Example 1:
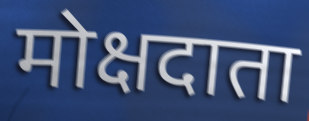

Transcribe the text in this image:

मोक्षदाता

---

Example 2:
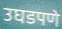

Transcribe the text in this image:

उघडपणे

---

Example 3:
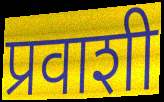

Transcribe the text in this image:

प्रवाशी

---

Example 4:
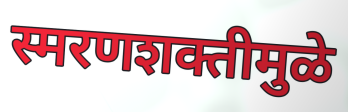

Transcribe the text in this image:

स्मरणशक्तीमुळे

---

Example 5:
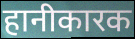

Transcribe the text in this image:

हानीकारक